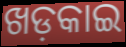
ଖଡ଼କାଇ